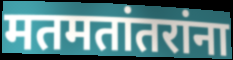
मतमतांतरांना